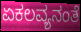
ಏಕಲವ್ಯನಂತೆ